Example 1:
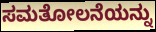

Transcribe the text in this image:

ಸಮತೋಲನೆಯನ್ನು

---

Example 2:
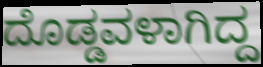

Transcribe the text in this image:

ದೊಡ್ಡವಳಾಗಿದ್ದ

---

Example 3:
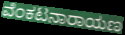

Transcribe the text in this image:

ವೆಂಕಟನಾರಾಯಣ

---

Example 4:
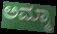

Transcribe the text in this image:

ಅಮ್ಮಾ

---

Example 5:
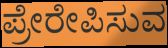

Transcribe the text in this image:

ಪ್ರೇರೇಪಿಸುವ